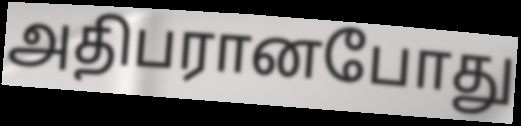
அதிபரானபோது